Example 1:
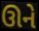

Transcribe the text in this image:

ઊને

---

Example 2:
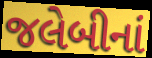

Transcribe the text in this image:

જલેબીનાં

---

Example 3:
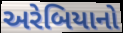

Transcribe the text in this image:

અરેબિયાનો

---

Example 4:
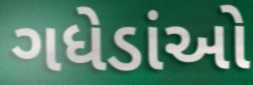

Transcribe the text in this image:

ગધેડાંઓ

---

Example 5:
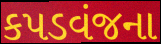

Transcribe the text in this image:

કપડવંજના